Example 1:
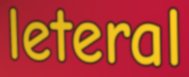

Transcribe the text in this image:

leteral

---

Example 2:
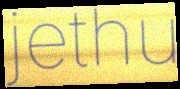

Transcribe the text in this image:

jethu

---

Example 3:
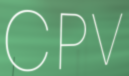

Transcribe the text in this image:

CPV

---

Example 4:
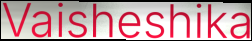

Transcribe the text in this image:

Vaisheshika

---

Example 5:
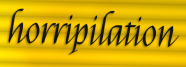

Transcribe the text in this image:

horripilation